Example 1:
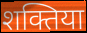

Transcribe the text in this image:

शक्तिया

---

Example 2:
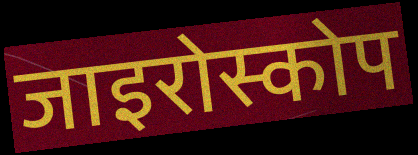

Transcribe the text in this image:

जाइरोस्कोप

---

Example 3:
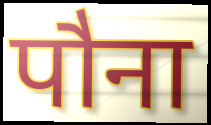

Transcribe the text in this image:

पौना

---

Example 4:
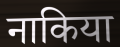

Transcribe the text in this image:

नाकिया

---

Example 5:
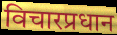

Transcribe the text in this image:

विचारप्रधान